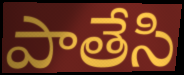
పాతేసి